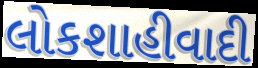
લોકશાહીવાદી